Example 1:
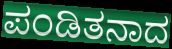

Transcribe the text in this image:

ಪಂಡಿತನಾದ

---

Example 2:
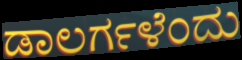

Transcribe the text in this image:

ಡಾಲರ್ಗಳೆಂದು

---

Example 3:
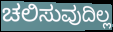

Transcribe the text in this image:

ಚಲಿಸುವುದಿಲ್ಲ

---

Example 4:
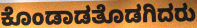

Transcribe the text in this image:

ಕೊಂಡಾಡತೊಡಗಿದರು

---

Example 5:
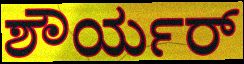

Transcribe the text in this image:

ಶೌರ್ಯರ್